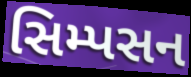
સિમ્પસન